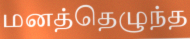
மனத்தெழுந்த